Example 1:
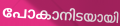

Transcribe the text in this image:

പോകാനിടയായി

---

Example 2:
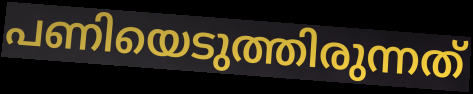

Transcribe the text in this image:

പണിയെടുത്തിരുന്നത്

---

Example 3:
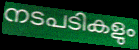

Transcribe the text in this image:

നടപടികളും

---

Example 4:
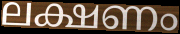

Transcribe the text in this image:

ലക്ഷണം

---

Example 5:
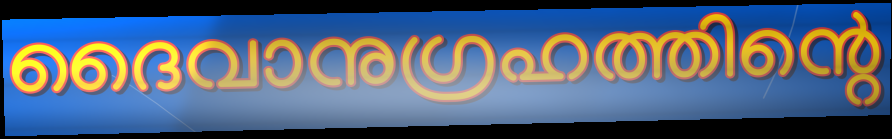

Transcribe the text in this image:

ദൈവാനുഗ്രഹത്തിന്റെ